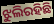
ଝୁଲିରହିଛି